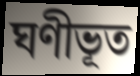
ঘণীভূত